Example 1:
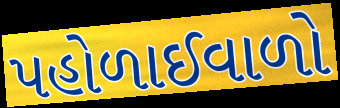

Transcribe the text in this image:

પહોળાઈવાળો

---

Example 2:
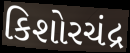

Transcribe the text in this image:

કિશોરચંદ્ર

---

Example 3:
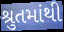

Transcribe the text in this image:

શ્રુતમાંથી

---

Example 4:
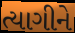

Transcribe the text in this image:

ત્યાગીને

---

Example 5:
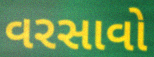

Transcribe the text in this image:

વરસાવો